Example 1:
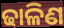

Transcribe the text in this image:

ଢାଳିଣ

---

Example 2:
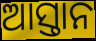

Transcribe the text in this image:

ଆସ୍ତାନ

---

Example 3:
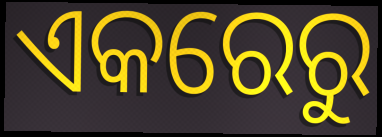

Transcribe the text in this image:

ଏକରେରୁ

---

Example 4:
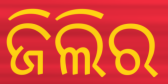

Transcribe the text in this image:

ଜିଲିର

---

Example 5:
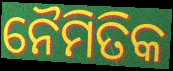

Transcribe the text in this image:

ନୈମିତିକ